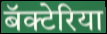
बॅक्टेरिया